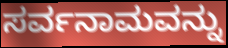
ಸರ್ವನಾಮವನ್ನು